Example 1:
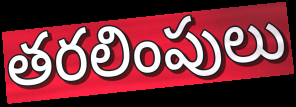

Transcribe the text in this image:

తరలింపులు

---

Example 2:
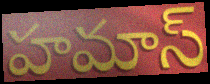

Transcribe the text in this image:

హమాస్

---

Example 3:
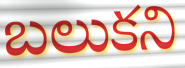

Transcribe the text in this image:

బలుకని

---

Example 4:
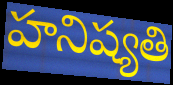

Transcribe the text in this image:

హనిష్యతి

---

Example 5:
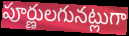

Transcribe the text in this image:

పూర్ణులగునట్లుగా